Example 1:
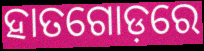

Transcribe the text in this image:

ହାତଗୋଡ଼ରେ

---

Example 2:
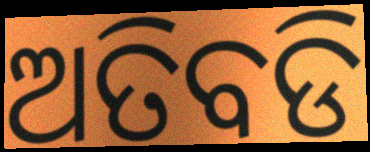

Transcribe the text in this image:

ଅତିବଡି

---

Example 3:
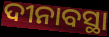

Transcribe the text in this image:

ଦୀନାବସ୍ଥା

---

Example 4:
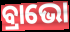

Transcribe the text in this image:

ବ୍ରାଭୋ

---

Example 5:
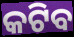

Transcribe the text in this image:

କଟିବ